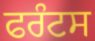
ਫਰੰਟਸ